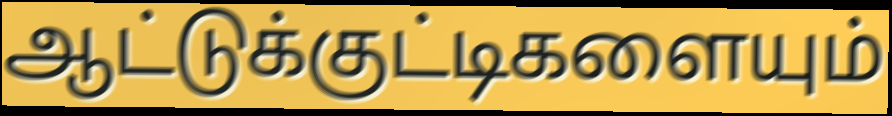
ஆட்டுக்குட்டிகளையும்